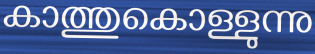
കാത്തുകൊള്ളുന്നു